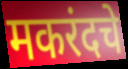
मकरंदचे